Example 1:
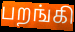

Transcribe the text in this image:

பறங்கி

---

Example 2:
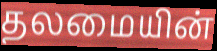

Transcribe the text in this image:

தலமையின்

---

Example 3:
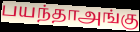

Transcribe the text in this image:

பயந்தாஅங்கு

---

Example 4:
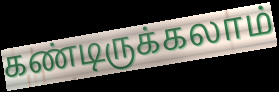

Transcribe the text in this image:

கண்டிருக்கலாம்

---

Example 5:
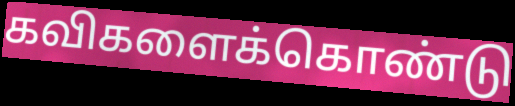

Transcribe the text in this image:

கவிகளைக்கொண்டு